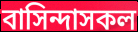
বাসিন্দাসকল